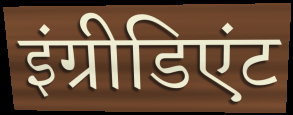
इंग्रीडिएंट